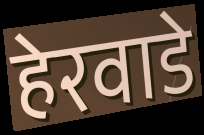
हेरवाडे